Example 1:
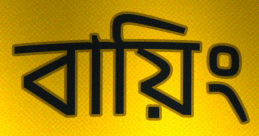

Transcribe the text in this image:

বায়িং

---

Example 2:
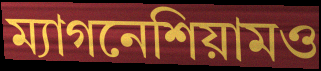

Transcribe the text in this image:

ম্যাগনেশিয়ামও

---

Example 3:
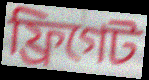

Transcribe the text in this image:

ফ্রিগেট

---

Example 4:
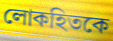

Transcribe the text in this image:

লোকহিতকে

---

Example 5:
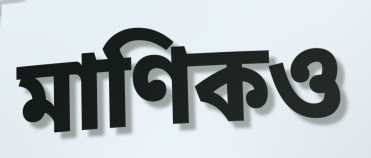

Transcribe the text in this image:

মাণিকও